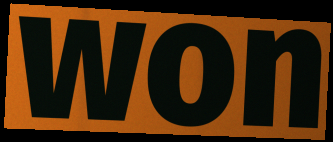
won